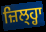
ਜ਼ਿਲ੍ਹ੍ਹਾ